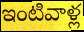
ఇంటివాళ్ల